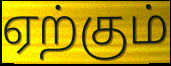
ஏற்கும்